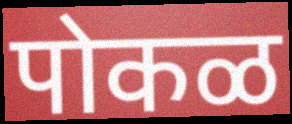
पोकळ